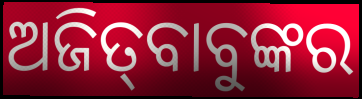
ଅଜିତ୍‍ବାବୁଙ୍କର